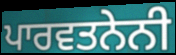
ਪਾਰਵਤਨੇਨੀ